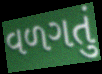
વળગતું